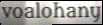
voalohany